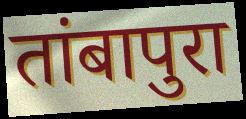
तांबापुरा